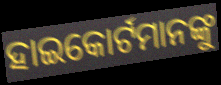
ହାଇକୋର୍ଟମାନଙ୍କୁ